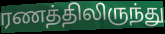
ரணத்திலிருந்து